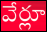
వేర్లూ